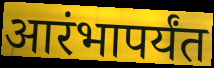
आरंभापर्यंत